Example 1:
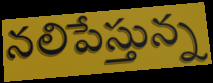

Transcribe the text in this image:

నలిపేస్తున్న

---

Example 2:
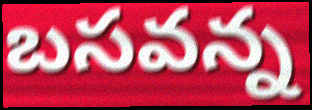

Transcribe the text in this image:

బసవన్న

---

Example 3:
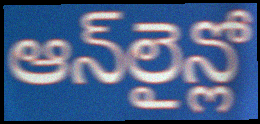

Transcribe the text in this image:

ఆన్‌లైన్లో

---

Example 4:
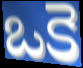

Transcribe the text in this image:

ఒకె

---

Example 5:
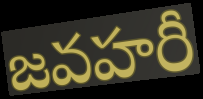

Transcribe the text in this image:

జవహరీ